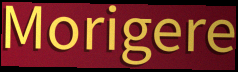
Morigere